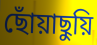
ছোঁয়াছুয়ি